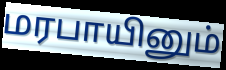
மரபாயினும்